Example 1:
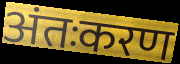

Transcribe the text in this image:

अंतःकरण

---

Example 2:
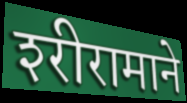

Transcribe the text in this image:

श्रीरामाने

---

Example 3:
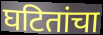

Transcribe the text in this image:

घटितांचा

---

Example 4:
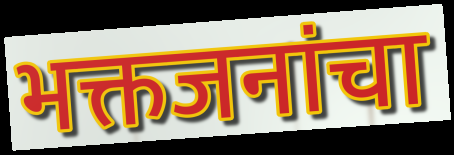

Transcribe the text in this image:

भक्तजनांचा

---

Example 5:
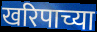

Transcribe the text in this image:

खरिपाच्या